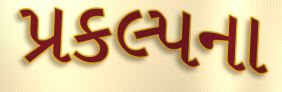
પ્રકલ્પના